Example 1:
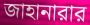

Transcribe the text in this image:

জাহানারার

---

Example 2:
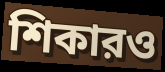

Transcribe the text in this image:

শিকারও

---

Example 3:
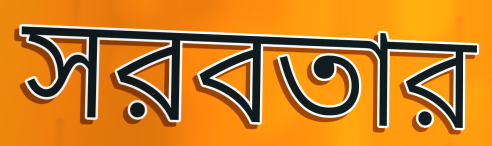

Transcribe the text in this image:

সরবতার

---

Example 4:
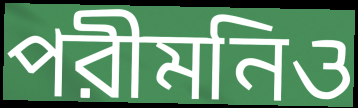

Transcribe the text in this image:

পরীমনিও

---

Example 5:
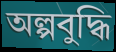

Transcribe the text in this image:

অল্পবুদ্ধি